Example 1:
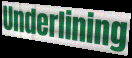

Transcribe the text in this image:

Underlining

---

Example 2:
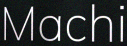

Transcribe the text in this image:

Machi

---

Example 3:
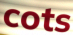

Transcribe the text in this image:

cots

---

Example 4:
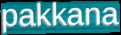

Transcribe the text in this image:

pakkana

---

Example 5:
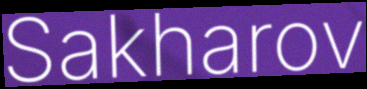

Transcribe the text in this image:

Sakharov